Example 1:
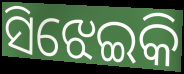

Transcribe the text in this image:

ସିଝେଇକି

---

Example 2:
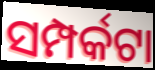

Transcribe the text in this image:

ସମ୍ପର୍କଟା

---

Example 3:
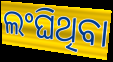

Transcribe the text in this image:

ଲଂଘିଥିବା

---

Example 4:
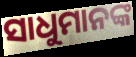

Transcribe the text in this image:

ସାଧୁମାନଙ୍କ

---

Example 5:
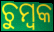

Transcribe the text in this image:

ଚୁମ୍ବକ